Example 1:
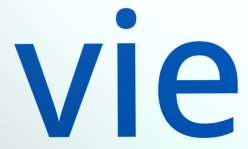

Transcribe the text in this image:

vie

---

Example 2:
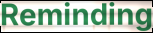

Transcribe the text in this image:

Reminding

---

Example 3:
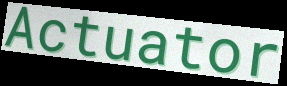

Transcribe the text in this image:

Actuator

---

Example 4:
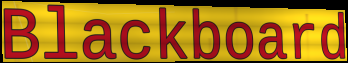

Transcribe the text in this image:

Blackboard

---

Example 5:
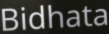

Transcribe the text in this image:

Bidhata